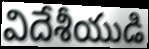
విదేశీయుడి